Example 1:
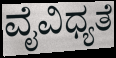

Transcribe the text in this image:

ವೈವಿಧ್ಯತೆ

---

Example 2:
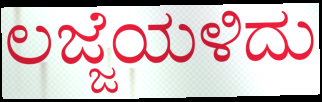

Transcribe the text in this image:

ಲಜ್ಜೆಯಳಿದು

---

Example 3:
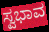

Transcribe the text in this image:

ಸ್ವಭಾವ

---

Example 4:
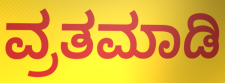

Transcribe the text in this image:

ವ್ರತಮಾಡಿ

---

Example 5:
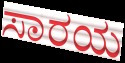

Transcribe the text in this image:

ಸಾರಯ